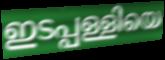
ഇടപ്പള്ളിയെ